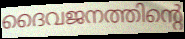
ദൈവജനത്തിന്റെ